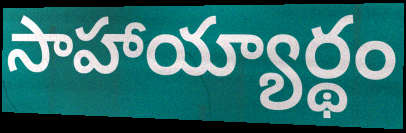
సాహాయ్యార్థం